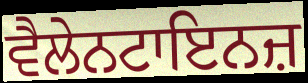
ਵੈਲੇਨਟਾਇਨਜ਼